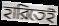
হারিতেই